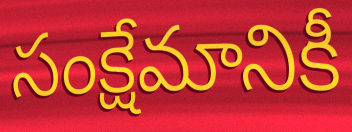
సంక్షేమానికీ